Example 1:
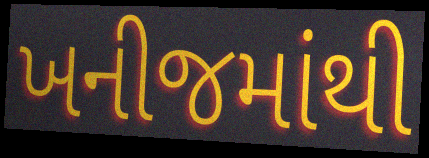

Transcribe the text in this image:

ખનીજમાંથી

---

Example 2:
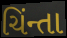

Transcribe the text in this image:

ચિંન્તા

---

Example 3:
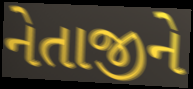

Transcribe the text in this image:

નેતાજીને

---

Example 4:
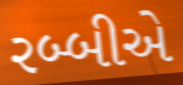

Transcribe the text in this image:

રબ્બીએ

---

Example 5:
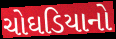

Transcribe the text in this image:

ચોઘડિયાનો